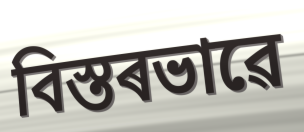
বিস্তৰভাৱে